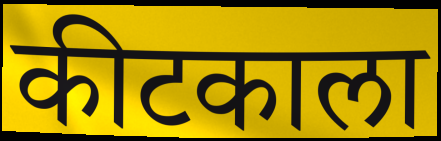
कीटकाला